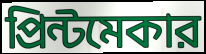
প্রিন্টমেকার